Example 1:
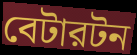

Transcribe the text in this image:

বেটারটন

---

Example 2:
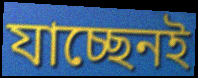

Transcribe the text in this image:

যাচ্ছেনই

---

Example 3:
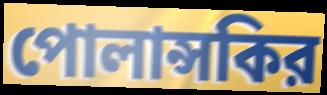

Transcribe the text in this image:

পোলান্সকির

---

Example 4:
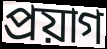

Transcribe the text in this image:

প্রয়াগ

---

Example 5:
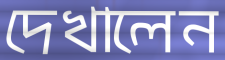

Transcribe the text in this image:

দেখালেন